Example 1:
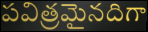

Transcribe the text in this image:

పవిత్రమైనదిగా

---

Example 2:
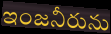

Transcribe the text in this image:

ఇంజనీరును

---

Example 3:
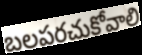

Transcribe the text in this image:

బలపరచుకోవాలి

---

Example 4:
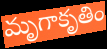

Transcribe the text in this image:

మృగాకృతిం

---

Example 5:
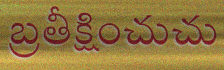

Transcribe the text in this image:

బ్రతీక్షించుచు